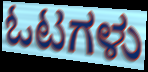
ಓಟಗಳು